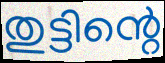
തുട്ടിന്റെ